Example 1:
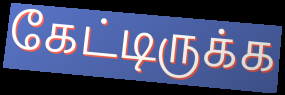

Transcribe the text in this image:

கேட்டிருக்க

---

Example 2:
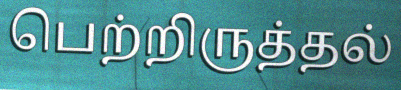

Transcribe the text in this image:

பெற்றிருத்தல்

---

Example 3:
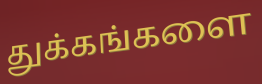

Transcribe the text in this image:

துக்கங்களை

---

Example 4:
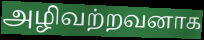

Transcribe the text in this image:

அழிவற்றவனாக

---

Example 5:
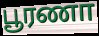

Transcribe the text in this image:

பூரணா